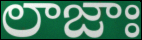
లాజాః